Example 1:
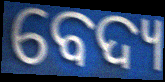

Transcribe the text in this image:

ବେଦ୍ୟ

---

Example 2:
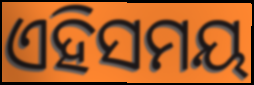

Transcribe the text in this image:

ଏହିସମୟ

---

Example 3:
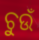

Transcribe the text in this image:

ଚୁଉଁ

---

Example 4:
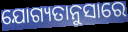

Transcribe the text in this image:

ଯୋଗ୍ୟତାନୁସାରେ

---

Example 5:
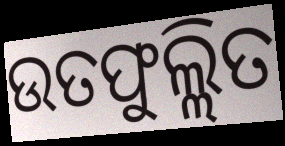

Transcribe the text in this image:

ଉତଫୁଲ୍ଲିତ